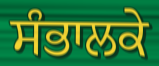
ਸੰਭਾਲਕੇ